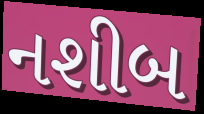
નશીબ